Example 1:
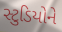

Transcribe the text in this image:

સ્ટુડિયોને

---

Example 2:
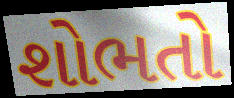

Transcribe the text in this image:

શોભતો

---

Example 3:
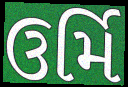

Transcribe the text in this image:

ઉર્મિ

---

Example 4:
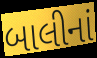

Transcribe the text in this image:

બાલીનાં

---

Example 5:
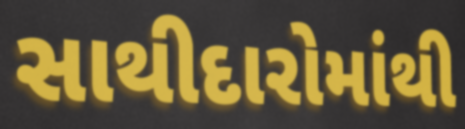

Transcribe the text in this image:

સાથીદારોમાંથી